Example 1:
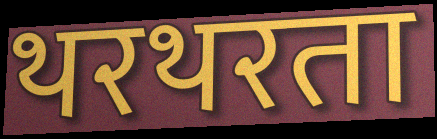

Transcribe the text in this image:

थरथरता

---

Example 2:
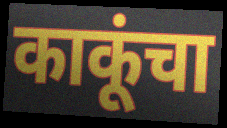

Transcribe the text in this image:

काकूंचा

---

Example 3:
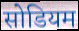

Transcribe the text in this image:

सोडियम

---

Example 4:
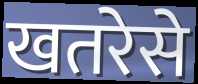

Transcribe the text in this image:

खतरेसे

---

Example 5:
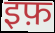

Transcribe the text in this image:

इफ़